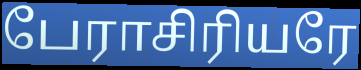
பேராசிரியரே